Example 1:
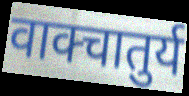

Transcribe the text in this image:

वाक्चातुर्य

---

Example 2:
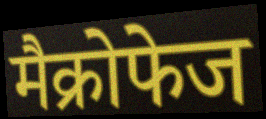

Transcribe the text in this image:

मैक्रोफेज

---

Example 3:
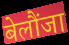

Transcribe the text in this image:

बेलौंजा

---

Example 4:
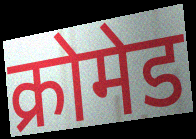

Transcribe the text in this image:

क्रोमेड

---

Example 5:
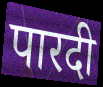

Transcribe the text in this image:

पारदी